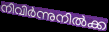
നിവിർന്നുനിൽക്ക